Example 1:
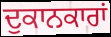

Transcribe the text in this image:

ਦੁਕਾਨਕਾਰਾਂ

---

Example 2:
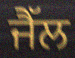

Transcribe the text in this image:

ਜੈੱਲ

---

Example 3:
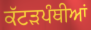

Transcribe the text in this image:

ਕੱਟੜਪੰਥੀਆਂ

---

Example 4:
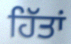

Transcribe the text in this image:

ਹਿੱਤਾਂ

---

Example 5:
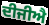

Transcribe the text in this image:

ਦੀਜੀਐ